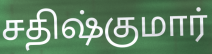
சதிஷ்குமார்